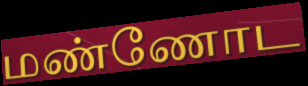
மண்ணோட